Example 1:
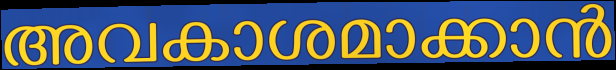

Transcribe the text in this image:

അവകാശമാക്കാൻ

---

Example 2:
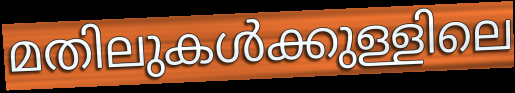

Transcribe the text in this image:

മതിലുകൾക്കുള്ളിലെ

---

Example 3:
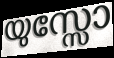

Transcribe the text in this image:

യുസ്സോ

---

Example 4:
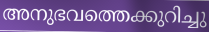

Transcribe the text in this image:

അനുഭവത്തെക്കുറിച്ചു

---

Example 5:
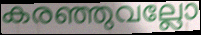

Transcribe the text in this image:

കരഞ്ഞുവല്ലോ